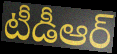
టీడీఆర్